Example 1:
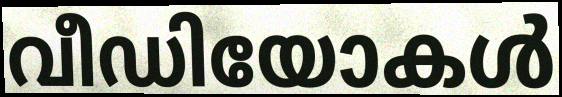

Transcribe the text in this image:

വീഡിയോകൾ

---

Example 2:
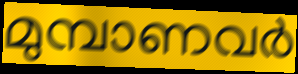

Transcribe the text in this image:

മുമ്പാണവർ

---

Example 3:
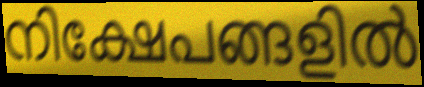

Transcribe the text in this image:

നിക്ഷേപങ്ങളിൽ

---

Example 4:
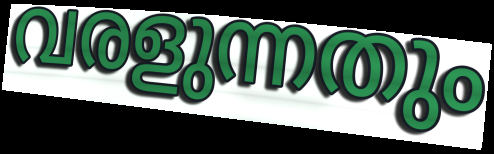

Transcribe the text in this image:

വരളുന്നതും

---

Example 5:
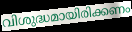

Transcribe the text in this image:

വിശുദ്ധമായിരിക്കണം